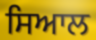
ਸਿਆਲ